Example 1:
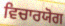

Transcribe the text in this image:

ਵਿਚਾਰਯੋਗ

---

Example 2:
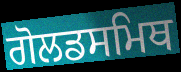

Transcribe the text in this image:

ਗੋਲਡਸਮਿਥ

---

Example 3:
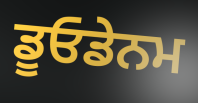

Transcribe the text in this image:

ਡੂਓਡੇਨਮ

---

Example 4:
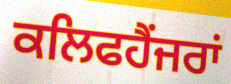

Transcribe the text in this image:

ਕਲਿਫਹੈਂਜਰਾਂ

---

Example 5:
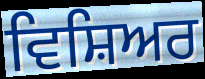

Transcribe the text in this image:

ਵਿਸ਼ਿਅਰ